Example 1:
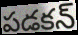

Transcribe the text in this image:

పడకన్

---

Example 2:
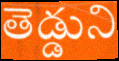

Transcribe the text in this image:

తెడ్డుని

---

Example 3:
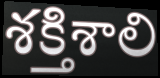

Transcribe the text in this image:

శక్తిశాలి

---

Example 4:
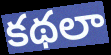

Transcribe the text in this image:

కథలా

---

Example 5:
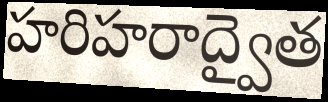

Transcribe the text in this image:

హరిహరాద్వైత